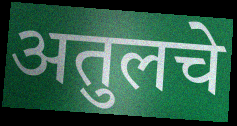
अतुलचे